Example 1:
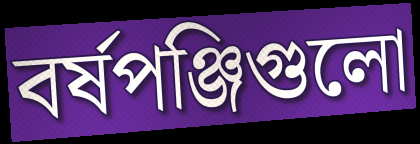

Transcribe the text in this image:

বর্ষপঞ্জিগুলো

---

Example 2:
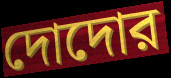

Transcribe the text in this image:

দোদোর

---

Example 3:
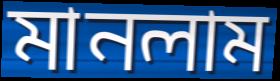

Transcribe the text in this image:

মানলাম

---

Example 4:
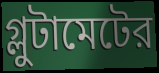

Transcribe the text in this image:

গ্লুটামেটের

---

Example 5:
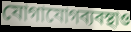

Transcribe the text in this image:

যোগাযোগব্যবস্থাও